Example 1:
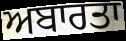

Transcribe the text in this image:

ਅਬਾਰਤਾ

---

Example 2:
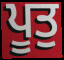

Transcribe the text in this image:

ਪੂਤੁ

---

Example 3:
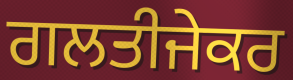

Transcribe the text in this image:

ਗਲਤੀਜੇਕਰ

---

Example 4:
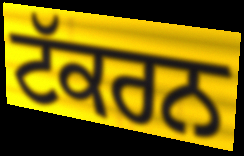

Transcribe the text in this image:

ਟੱਕਰਨ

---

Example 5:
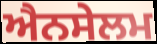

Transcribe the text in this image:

ਐਨਸੇਲਮ